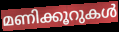
മണിക്കൂറുകൾ